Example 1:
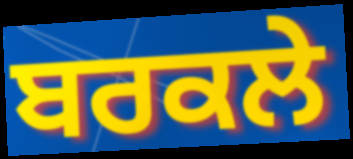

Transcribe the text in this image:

ਬਰਕਲੇ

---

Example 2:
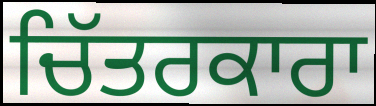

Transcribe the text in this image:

ਚਿੱਤਰਕਾਰਾ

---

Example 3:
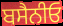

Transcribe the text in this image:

ਬਸੈਨੀਓ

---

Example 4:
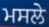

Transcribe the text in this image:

ਮਸਲੇ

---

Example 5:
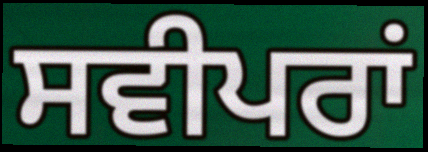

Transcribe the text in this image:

ਸਵੀਪਰਾਂ